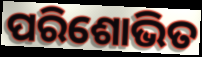
ପରିଶୋଭିତ